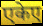
एकेए